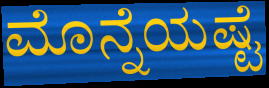
ಮೊನ್ನೆಯಷ್ಟೆ